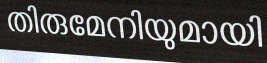
തിരുമേനിയുമായി